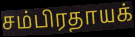
சம்பிரதாயக்